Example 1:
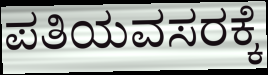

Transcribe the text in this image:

ಪತಿಯವಸರಕ್ಕೆ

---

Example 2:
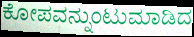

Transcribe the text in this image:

ಕೋಪವನ್ನುಂಟುಮಾಡಿದ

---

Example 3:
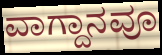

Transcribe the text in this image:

ವಾಗ್ದಾನವೂ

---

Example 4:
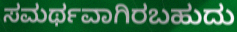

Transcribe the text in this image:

ಸಮರ್ಥವಾಗಿರಬಹುದು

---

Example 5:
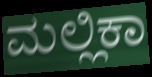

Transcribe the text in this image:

ಮಲ್ಲಿಕಾ